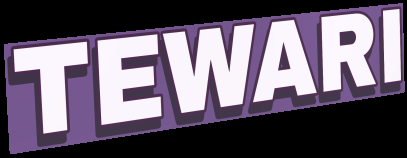
TEWARI